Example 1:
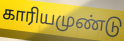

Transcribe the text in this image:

காரியமுண்டு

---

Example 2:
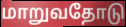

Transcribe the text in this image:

மாறுவதோடு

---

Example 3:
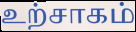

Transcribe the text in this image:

உற்சாகம்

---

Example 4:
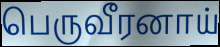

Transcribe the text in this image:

பெருவீரனாய்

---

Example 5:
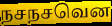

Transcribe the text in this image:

நசநசவென